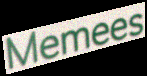
Memees